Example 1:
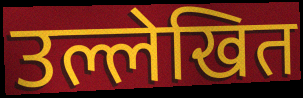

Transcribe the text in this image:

उल्लेखित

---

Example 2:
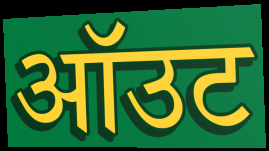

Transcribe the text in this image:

ऑउट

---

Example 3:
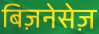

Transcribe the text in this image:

बिज़नेसेज़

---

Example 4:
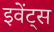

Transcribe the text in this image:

इवेंट्स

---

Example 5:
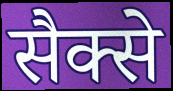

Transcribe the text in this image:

सैक्से